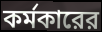
কর্মকারের